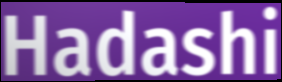
Hadashi